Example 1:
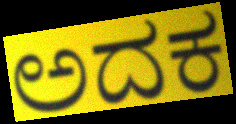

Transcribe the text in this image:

ಅದಕ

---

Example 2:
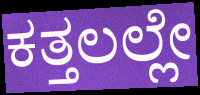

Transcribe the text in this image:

ಕತ್ತಲಲ್ಲೇ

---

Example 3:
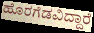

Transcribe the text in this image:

ಹೊರಗೆಡವಿದ್ದಾರೆ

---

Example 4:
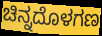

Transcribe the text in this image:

ಚಿನ್ನದೊಳಗಣ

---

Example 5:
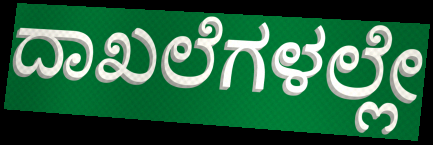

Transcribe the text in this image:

ದಾಖಲೆಗಳಲ್ಲೇ